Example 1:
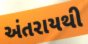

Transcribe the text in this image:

અંતરાયથી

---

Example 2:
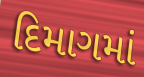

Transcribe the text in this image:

દિમાગમાં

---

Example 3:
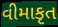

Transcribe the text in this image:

વીમાકૃત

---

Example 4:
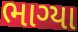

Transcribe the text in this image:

ભાગ્યા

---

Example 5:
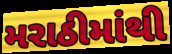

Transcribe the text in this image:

મરાઠીમાંથી